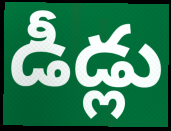
డీడ్లు